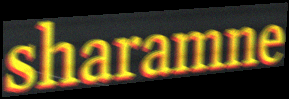
sharamne